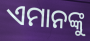
ଏମାନଙ୍କୁ